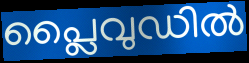
പ്ലൈവുഡിൽ